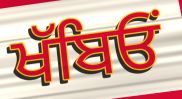
ਖੱਬਿਓਂ